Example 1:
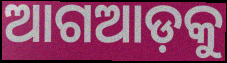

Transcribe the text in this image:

ଆଗଆଡ଼କୁ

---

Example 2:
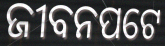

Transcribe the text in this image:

ଜୀବନପଟେ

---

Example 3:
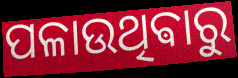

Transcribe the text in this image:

ପଳାଉଥିଵାରୁ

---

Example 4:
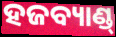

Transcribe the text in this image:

ହଜବ୍ୟାଣ୍ଡ୍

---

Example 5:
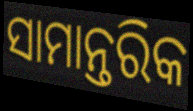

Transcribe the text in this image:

ସାମାନ୍ତରିକ